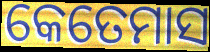
କେତେମାସ